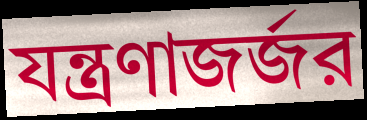
যন্ত্রণাজর্জর